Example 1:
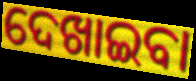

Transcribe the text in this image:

ଦେଖାଇବା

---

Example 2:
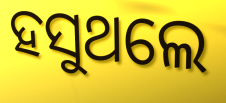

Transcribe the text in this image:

ହସୁଥଲେ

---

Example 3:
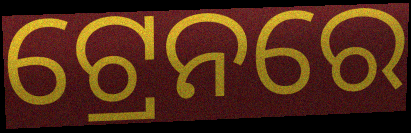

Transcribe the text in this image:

ଟ୍ରେନରେ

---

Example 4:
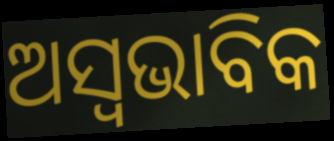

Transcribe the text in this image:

ଅସ୍ୱଭାବିକ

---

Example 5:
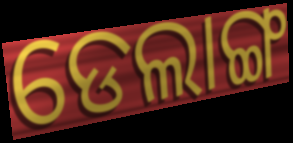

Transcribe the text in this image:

ଡେଲାଙ୍ଗ